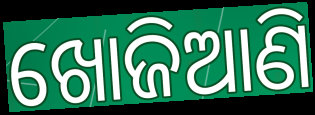
ଖୋଜିଆଣି